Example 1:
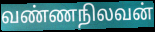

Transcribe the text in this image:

வண்ணநிலவன்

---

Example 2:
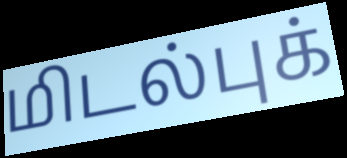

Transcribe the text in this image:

மிடல்புக்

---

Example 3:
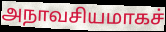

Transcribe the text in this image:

அநாவசியமாகச்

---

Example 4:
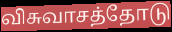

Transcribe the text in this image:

விசுவாசத்தோடு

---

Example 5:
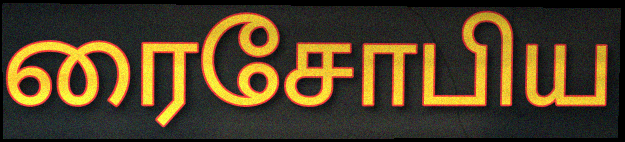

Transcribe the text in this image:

ரைசோபிய